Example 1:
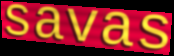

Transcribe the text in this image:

savas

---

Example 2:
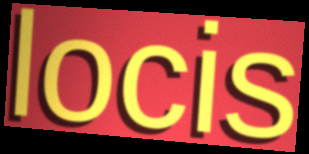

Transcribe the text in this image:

locis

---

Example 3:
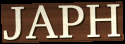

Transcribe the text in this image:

JAPH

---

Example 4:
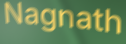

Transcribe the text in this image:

Nagnath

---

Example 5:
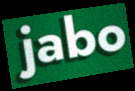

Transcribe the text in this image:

jabo